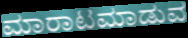
ಮಾರಾಟಮಾಡುವ